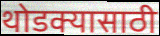
थोडक्यासाठी